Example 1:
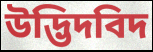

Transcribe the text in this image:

উদ্ভিদবিদ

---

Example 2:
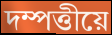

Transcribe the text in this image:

দম্পত্তীয়ে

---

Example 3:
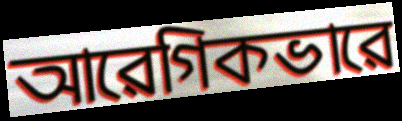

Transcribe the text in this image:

আৱেগিকভাৱে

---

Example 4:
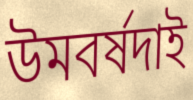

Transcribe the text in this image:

উমবৰ্ষদাই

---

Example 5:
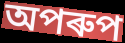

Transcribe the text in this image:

অপৰুপ